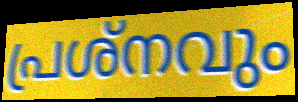
പ്രശ്നവും